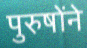
पुरुषोंने